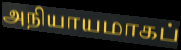
அநியாயமாகப்